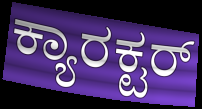
ಕ್ಯಾರಕ್ಟರ್